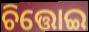
ଚିତ୍ତୋଇ